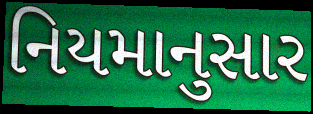
નિયમાનુસાર